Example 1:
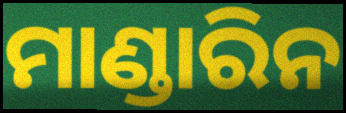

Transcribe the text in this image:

ମାଣ୍ଡାରିନ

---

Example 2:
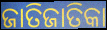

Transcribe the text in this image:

ଜାତିଜାତିକା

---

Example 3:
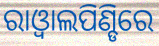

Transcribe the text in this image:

ରାଓ୍ଵାଲପିଣ୍ଡିରେ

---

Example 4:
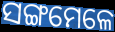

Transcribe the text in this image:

ସଙ୍ଗମେଳେ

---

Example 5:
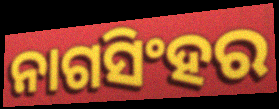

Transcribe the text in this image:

ନାଗସିଂହର